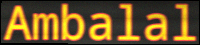
Ambalal